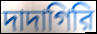
দাদাগিরি